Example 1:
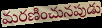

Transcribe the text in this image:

మరణించునపుడు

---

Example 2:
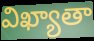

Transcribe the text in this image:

విఖ్యాతా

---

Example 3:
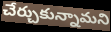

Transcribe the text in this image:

చేర్చుకున్నామని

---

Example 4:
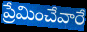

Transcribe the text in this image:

ప్రేమించేవారే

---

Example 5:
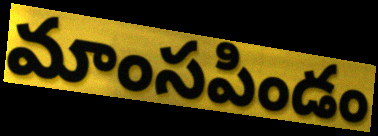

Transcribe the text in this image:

మాంసపిండం